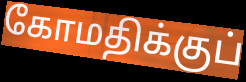
கோமதிக்குப்